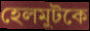
হেলমুটকে